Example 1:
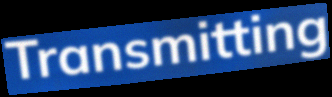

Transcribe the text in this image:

Transmitting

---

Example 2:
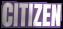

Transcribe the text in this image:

CITIZEN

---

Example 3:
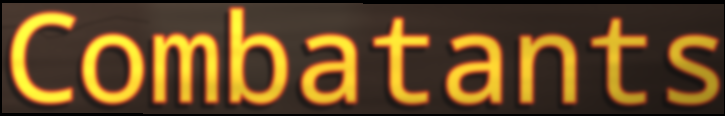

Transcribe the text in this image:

Combatants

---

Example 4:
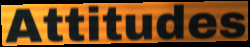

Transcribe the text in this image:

Attitudes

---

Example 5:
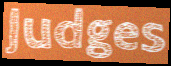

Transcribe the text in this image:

Judges